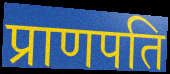
प्राणपति